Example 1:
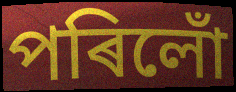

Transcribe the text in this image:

পৰিলোঁ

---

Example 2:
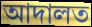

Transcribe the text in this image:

আদালত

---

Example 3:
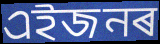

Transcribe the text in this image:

এইজনৰ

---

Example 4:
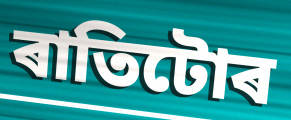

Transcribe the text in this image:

ৰাতিটোৰ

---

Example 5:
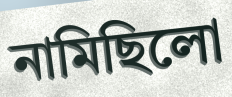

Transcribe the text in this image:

নামিছিলো